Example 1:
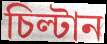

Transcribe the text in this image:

চিল্টান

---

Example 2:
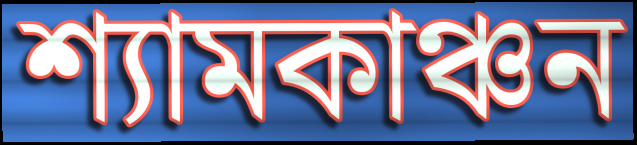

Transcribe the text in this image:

শ্যামকাঞ্চন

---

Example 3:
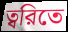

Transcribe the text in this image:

ত্বরিতে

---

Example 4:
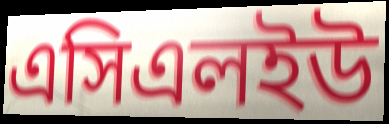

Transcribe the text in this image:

এসিএলইউ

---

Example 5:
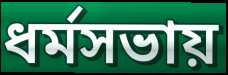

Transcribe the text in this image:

ধর্মসভায়